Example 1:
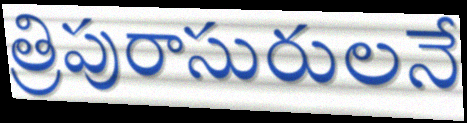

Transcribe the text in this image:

త్రిపురాసురులనే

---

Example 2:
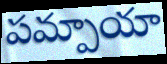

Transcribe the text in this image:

పమ్పాయా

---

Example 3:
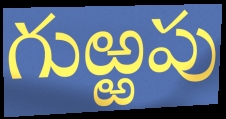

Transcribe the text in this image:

గుఱ్ఱపు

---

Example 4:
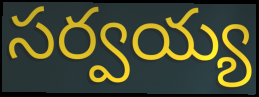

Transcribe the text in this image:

సర్వయ్య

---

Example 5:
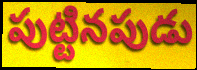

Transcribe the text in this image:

పుట్టినపుడు